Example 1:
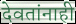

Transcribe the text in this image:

देवतांनाही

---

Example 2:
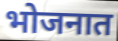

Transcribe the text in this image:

भोजनात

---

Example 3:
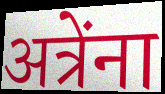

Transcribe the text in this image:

अत्रेंना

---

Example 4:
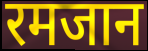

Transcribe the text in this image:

रमजान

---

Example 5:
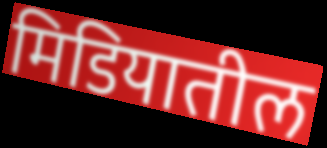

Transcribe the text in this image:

मिडियातील